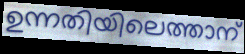
ഉന്നതിയിലെത്താന്